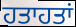
ਹਤਾਹਤਾਂ